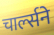
चार्ल्सने